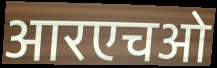
आरएचओ